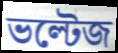
ভল্টেজ